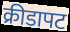
क्रीडापट